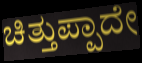
ಚಿತ್ತುಪ್ಪಾದೇ